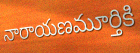
నారాయణమూర్తికి